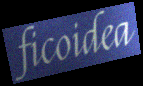
ficoidea